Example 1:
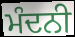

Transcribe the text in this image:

ਮੰਦਨੀ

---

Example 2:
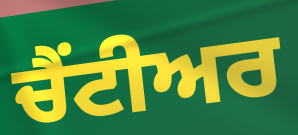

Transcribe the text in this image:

ਚੈਂਟੀਅਰ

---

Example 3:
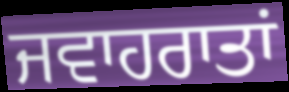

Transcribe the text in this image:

ਜਵਾਹਰਾਤਾਂ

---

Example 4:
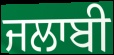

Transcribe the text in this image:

ਜਲਾਬੀ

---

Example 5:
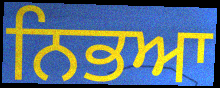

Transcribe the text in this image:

ਨਿਭਆ